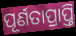
ପୂର୍ଣତାପ୍ରାପ୍ତି